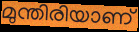
മുന്തിരിയാണ്